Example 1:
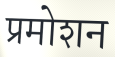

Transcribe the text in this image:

प्रमोशन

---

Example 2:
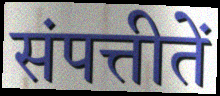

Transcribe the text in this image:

संपत्तीतें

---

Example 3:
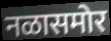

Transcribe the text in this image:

नळासमोर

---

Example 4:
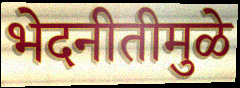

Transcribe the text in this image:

भेदनीतीमुळे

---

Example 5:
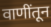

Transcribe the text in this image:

वाणींतून